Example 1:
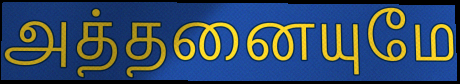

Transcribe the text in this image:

அத்தனையுமே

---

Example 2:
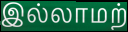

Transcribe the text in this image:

இல்லாமற்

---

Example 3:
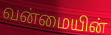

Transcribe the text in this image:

வன்மையின்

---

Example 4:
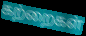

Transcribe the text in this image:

கற்றைகள்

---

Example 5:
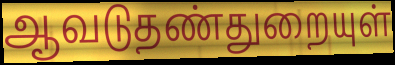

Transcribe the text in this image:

ஆவடுதண்துறையுள்